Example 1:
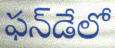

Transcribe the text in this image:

ఫన్‌డేలో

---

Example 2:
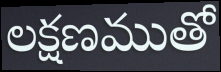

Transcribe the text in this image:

లక్షణముతో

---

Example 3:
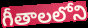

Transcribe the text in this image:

గీతాలలోని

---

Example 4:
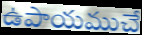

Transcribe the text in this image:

ఉపాయముచే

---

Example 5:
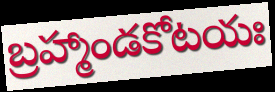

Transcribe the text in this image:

బ్రహ్మాండకోటయః